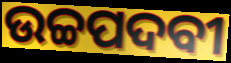
ଉଚ୍ଚପଦବୀ